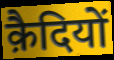
क़ैदियों